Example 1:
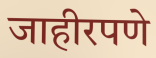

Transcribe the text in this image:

जाहीरपणे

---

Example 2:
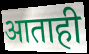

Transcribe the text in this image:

आताही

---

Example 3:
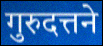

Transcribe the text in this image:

गुरुदत्तने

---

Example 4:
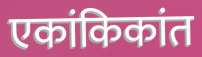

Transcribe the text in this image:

एकांकिकांत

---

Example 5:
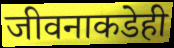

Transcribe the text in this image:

जीवनाकडेही